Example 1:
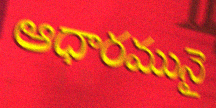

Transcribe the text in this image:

ఆధారమునై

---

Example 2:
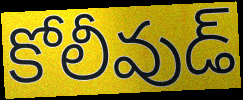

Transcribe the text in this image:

కోలీవుడ్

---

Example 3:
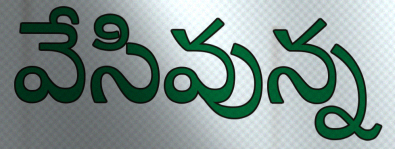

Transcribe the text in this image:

వేసివున్న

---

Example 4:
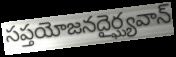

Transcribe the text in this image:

సప్తయోజనదైర్ఘ్యవాన్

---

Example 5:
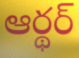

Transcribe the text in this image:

ఆర్థర్